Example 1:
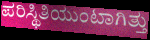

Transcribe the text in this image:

ಪರಿಸ್ಥಿತಿಯುಂಟಾಗಿತ್ತು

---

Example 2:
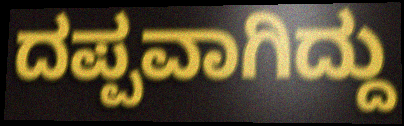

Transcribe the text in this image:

ದಪ್ಪವಾಗಿದ್ದು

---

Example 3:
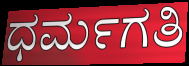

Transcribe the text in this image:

ಧರ್ಮಗತಿ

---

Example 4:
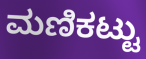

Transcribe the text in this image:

ಮಣಿಕಟ್ಟು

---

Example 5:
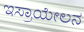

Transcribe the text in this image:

ಇಸ್ರಾಯೇಲನ